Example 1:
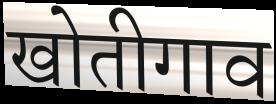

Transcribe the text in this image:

खोतीगाव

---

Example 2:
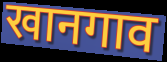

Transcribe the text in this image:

खानगाव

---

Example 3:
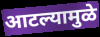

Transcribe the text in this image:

आटल्यामुळे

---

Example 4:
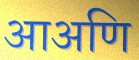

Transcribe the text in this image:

आअणि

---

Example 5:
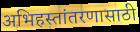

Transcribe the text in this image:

अभिहस्तांतरणासाठी